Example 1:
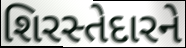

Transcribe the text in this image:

શિરસ્તેદારને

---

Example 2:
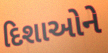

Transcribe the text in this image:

દિશાઓને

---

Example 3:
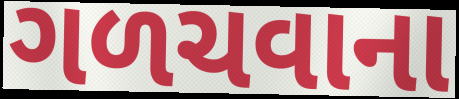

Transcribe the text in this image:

ગળચવાના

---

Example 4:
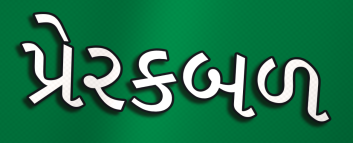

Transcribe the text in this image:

પ્રેરકબળ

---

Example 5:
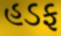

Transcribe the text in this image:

હડફ